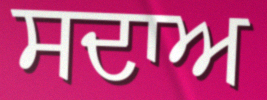
ਸਦਾਅ